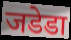
जडेडा